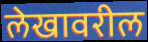
लेखावरील